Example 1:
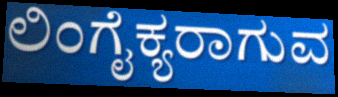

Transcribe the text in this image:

ಲಿಂಗೈಕ್ಯರಾಗುವ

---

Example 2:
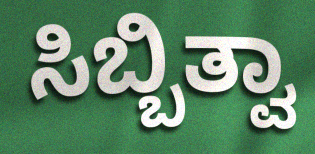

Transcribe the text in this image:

ಸಿಬ್ಬಿತ್ವಾ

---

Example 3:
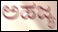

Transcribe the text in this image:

ಅಹಜ್ಯ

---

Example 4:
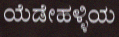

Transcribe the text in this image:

ಯೆಡೇಹಳ್ಳಿಯ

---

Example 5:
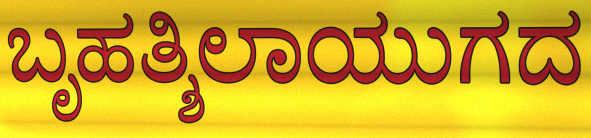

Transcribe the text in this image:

ಬೃಹತ್ಶಿಲಾಯುಗದ